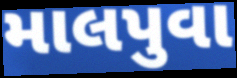
માલપુવા